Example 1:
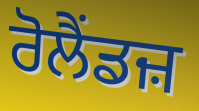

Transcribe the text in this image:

ਰੋਲੈਂਡਜ਼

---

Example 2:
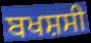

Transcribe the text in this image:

ਬਖਸ਼ਸੀ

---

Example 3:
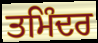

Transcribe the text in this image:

ਤਮਿੰਦਰ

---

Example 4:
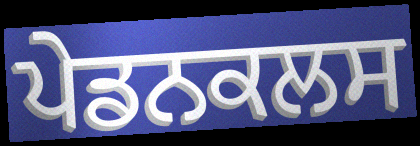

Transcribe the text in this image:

ਪੇਡਨਕਲਸ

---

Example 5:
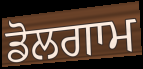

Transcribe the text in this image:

ਡੋਲਗਾਮ